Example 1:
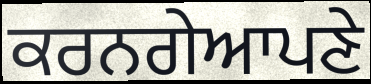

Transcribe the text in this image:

ਕਰਨਗੇਆਪਣੇ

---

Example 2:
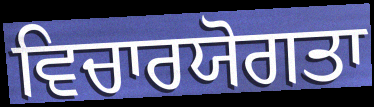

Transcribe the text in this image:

ਵਿਚਾਰਯੋਗਤਾ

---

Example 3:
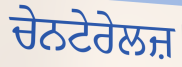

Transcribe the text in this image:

ਚੇਨਟੇਰੇਲਜ਼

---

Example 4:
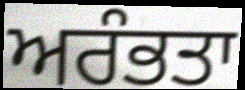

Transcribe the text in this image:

ਅਰੰਭਤਾ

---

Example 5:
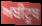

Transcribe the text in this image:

ਅਬੀਟੂਥ